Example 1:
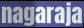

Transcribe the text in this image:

nagaraja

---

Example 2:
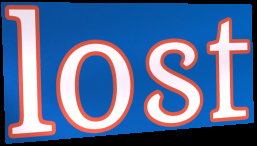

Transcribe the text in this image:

lost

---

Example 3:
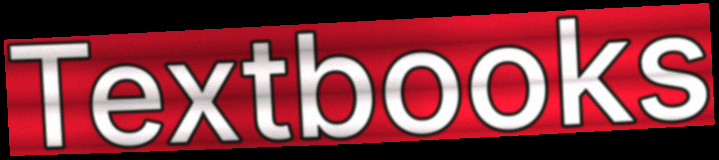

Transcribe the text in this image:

Textbooks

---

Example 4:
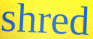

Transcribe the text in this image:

shred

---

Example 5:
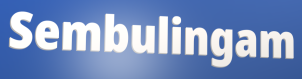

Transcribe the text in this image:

Sembulingam